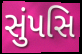
સુંપસિ